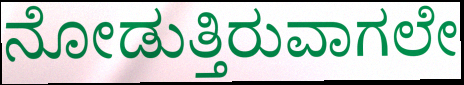
ನೋಡುತ್ತಿರುವಾಗಲೇ